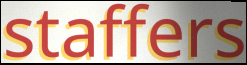
staffers